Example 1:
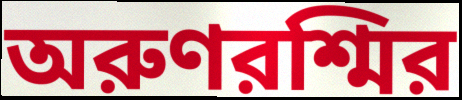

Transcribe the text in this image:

অরুণরশ্মির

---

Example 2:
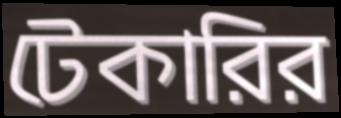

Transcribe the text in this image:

টেকারির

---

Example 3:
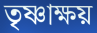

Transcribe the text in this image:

তৃষ্ণাক্ষয়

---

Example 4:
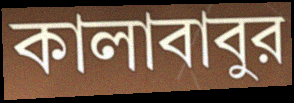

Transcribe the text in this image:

কালাবাবুর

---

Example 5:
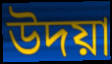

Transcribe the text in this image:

উদয়া